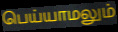
பெய்யாமலும்